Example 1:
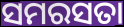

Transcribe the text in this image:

ସମରସତା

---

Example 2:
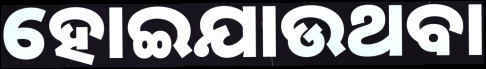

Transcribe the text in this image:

ହୋଇଯାଉଥବା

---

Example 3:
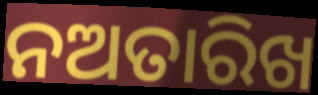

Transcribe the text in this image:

ନଅତାରିଖ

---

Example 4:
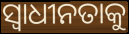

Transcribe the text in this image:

ସ୍ବାଧୀନତାକୁ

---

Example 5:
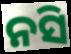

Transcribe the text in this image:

ନସି